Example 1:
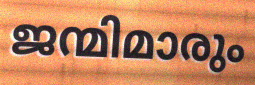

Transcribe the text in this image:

ജന്മിമാരും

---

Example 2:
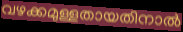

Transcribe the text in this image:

വഴക്കമുള്ളതായതിനാൽ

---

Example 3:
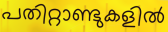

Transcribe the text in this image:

പതിറ്റാണ്ടുകളിൽ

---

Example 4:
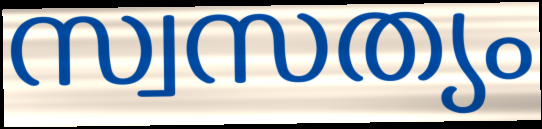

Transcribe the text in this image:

സ്വസത്യം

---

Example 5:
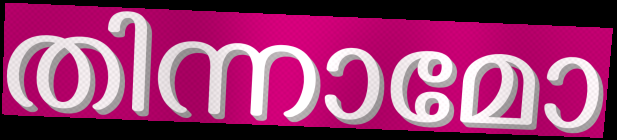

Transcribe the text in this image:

തിന്നാമോ